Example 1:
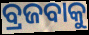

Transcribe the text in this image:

ବ୍ରଜବାକୁ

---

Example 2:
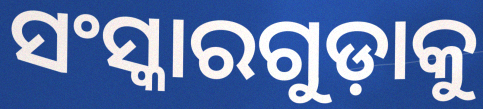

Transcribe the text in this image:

ସଂସ୍କାରଗୁଡ଼ାକୁ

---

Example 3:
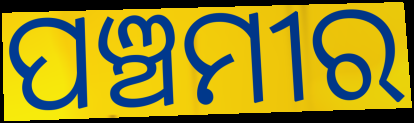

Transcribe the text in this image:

ପଞ୍ଚମୀର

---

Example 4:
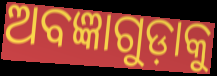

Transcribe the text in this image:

ଅବଜ୍ଞାଗୁଡ଼ାକୁ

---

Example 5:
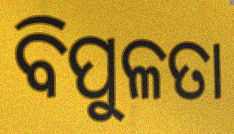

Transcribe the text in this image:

ବିପୁଳତା